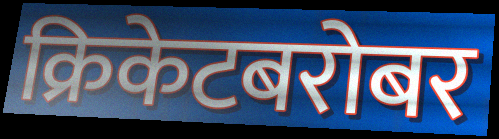
क्रिकेटबरोबर